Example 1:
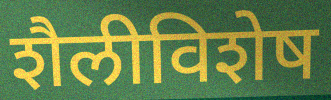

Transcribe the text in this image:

शैलीविशेष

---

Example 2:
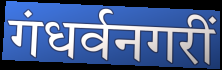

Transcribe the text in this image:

गंधर्वनगरीं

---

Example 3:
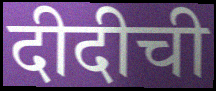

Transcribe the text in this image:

दीदीची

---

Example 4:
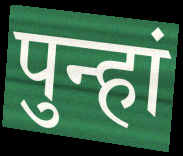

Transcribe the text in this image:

पुन्हां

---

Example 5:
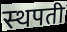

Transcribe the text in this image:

स्थपती